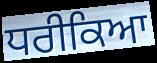
ਧਰੀਕਿਆ